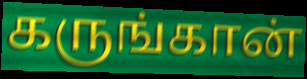
கருங்கான்